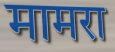
मामरा